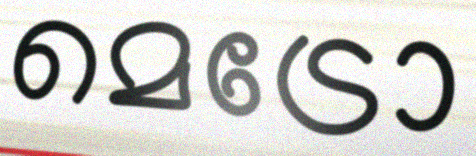
മെട്രോ